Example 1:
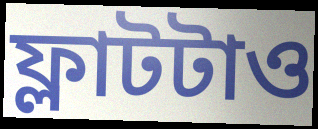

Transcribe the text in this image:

ফ্লাটটাও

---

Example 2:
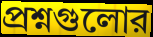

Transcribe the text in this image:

প্রশ্নগুলোর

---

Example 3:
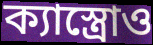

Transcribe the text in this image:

ক্যাস্ত্রোও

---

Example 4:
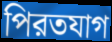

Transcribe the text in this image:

পিরতযাগ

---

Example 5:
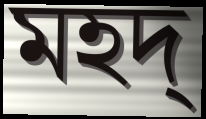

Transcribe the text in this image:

মহদ্